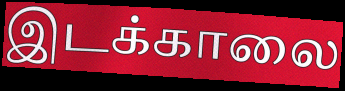
இடக்காலை